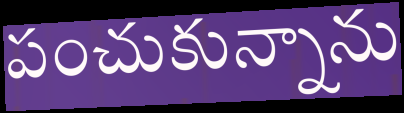
పంచుకున్నాను